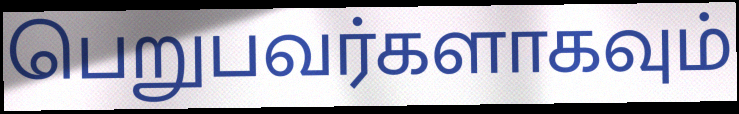
பெறுபவர்களாகவும்